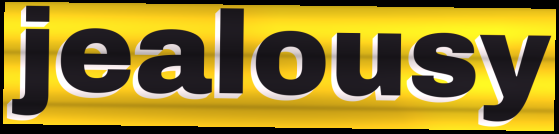
jealousy